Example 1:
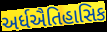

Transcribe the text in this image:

અર્ધઐતિહાસિક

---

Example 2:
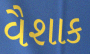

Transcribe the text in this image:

વૈશાક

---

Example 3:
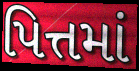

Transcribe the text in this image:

પિત્તમાં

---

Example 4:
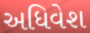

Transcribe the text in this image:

અધિવેશ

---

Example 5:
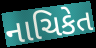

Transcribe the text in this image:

નાચિકેત